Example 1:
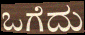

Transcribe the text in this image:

ಒಗೆದು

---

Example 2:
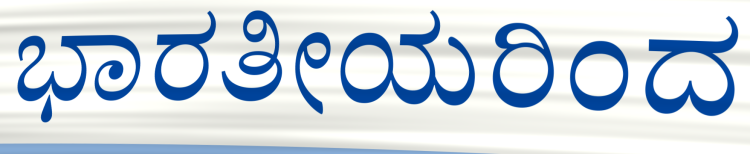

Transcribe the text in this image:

ಭಾರತೀಯರಿಂದ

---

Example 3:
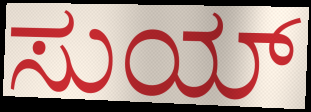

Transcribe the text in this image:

ಸುಯ್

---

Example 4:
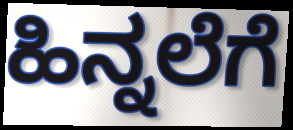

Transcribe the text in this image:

ಹಿನ್ನಲೆಗೆ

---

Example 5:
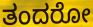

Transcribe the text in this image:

ತಂದರೋ